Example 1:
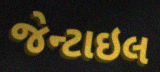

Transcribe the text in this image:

જેન્ટાઇલ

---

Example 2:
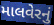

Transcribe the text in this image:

માલવેરનું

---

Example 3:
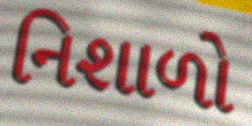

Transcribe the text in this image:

નિશાળો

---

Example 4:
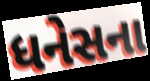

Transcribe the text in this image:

ધનેસના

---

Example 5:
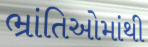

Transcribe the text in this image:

ભ્રાંતિઓમાંથી